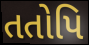
તતોપિ